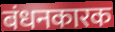
बंधनकारक